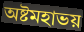
অষ্টমহাভয়